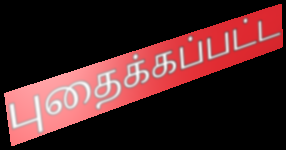
புதைக்கப்பட்ட